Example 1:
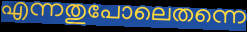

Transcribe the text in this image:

എന്നതുപോലെതന്നെ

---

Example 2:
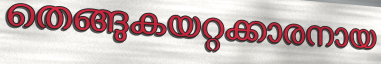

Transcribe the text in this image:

തെങ്ങുകയറ്റക്കാരനായ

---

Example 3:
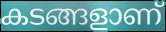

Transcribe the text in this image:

കടങ്ങളാണ്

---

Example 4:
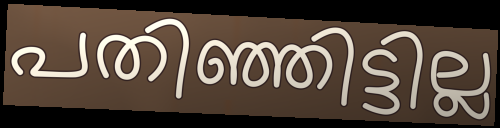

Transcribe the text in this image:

പതിഞ്ഞിട്ടില്ല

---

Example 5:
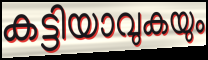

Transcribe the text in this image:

കട്ടിയാവുകയും